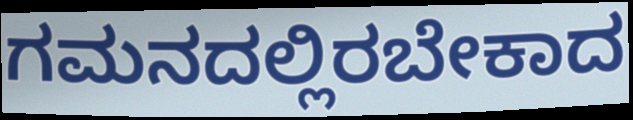
ಗಮನದಲ್ಲಿರಬೇಕಾದ